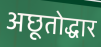
अछूतोद्धार